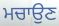
ਮਚਾਉਣ